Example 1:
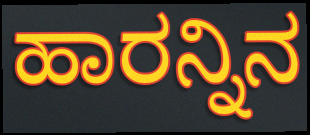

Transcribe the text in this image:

ಹಾರನ್ನಿನ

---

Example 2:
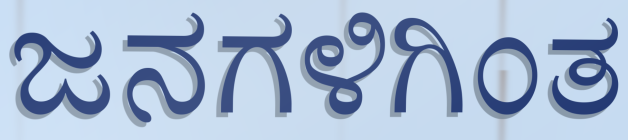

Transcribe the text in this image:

ಜನಗಳಿಗಿಂತ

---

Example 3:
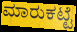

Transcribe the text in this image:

ಮಾರುಕಟ್ಟೆ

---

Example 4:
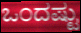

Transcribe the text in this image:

ಒಂದಷ್ಟು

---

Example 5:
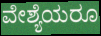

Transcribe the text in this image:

ವೇಶ್ಯೆಯರೂ